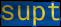
supt